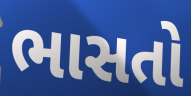
ભાસતો